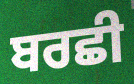
ਬਰਛੀ